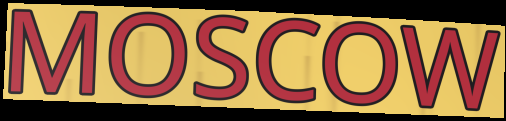
MOSCOW